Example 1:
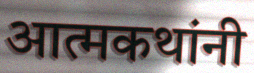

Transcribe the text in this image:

आत्मकथांनी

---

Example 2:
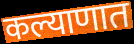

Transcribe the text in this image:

कल्याणात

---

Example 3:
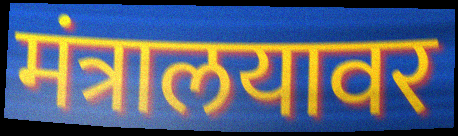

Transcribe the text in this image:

मंत्रालयावर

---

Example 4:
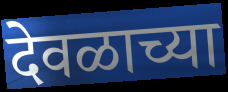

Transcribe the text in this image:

देवळाच्या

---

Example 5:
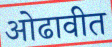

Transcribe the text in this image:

ओढावीत